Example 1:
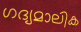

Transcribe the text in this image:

ഗദ്യമാലിക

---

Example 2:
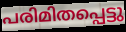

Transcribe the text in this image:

പരിമിതപ്പെട്ടു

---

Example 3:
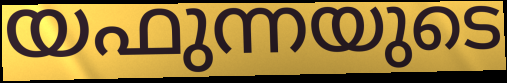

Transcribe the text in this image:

യഫുന്നയുടെ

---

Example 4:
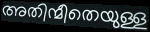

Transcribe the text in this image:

അതിന്മീതെയുള്ള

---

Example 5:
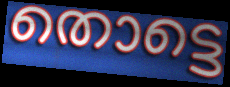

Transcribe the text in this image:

തൊട്ടെ